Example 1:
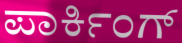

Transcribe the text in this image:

ಪಾರ್ಕಿಂಗ್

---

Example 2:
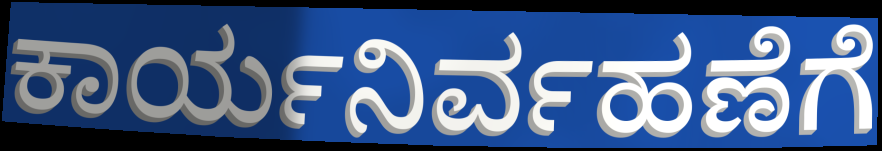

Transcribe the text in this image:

ಕಾರ್ಯನಿರ್ವಹಣೆಗೆ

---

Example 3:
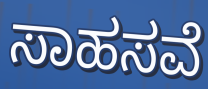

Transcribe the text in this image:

ಸಾಹಸವೆ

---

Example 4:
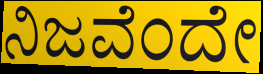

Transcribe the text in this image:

ನಿಜವೆಂದೇ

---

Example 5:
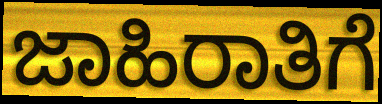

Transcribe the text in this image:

ಜಾಹಿರಾತಿಗೆ